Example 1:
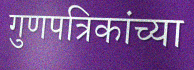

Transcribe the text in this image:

गुणपत्रिकांच्या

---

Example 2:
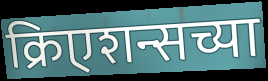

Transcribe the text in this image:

क्रिएशन्सच्या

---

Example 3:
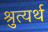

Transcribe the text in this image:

श्रुत्यर्थ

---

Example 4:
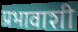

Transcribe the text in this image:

प्रभावाशी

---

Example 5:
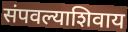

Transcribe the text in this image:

संपवल्याशिवाय